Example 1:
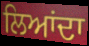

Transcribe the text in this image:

ਲਿਆਂਦਾ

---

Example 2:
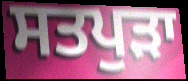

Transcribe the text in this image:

ਸਤਪੁੜਾ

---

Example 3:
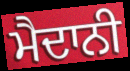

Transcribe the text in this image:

ਮੈਦਾਨੀ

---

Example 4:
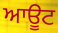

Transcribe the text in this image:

ਆਊਟ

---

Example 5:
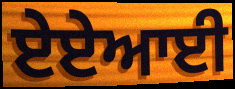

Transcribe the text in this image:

ਏਏਆਈ